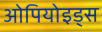
ओपियोइड्स